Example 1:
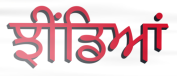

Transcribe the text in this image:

ਝੀਂਡਿਆਂ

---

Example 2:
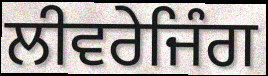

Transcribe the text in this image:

ਲੀਵਰੇਜਿੰਗ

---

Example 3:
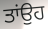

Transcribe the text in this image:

ਤਾਂਉਹ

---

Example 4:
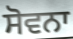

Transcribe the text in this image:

ਸੋਵਨਾ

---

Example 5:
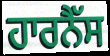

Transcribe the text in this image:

ਹਾਰਨੈੱਸ